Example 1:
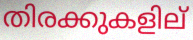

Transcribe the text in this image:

തിരക്കുകളില്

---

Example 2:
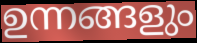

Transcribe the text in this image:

ഉന്നങ്ങളും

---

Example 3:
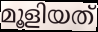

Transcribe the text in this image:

മൂളിയത്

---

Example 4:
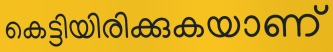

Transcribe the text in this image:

കെട്ടിയിരിക്കുകയാണ്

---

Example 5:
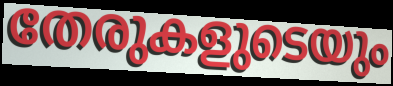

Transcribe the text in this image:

തേരുകളുടെയും